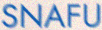
SNAFU